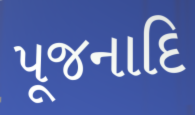
પૂજનાદિ